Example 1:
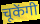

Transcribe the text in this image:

चूकेंगी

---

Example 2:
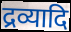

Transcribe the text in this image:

द्रव्यादि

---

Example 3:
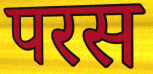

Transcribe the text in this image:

परस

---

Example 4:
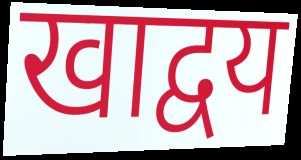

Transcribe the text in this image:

खाद्वय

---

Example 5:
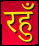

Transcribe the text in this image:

रहुँ